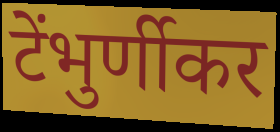
टेंभुर्णीकर